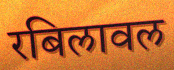
रबिलावल